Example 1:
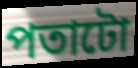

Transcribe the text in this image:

পতাটো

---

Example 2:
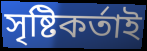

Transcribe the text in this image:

সৃষ্টিকৰ্তাই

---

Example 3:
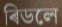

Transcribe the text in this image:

ৰিডলে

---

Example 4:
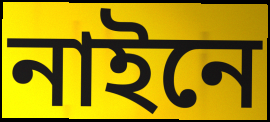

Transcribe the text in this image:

নাইনে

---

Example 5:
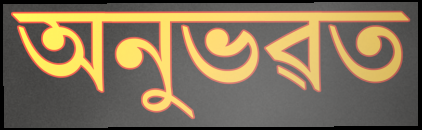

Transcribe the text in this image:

অনুভৱত